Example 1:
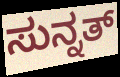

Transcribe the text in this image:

ಸುನ್ನತ್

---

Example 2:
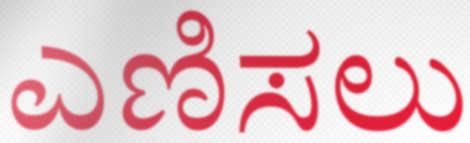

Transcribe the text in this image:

ಎಣಿಸಲು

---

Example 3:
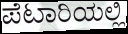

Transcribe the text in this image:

ಪೆಟಾರಿಯಲ್ಲಿ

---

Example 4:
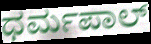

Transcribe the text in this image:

ಧರ್ಮಪಾಲ್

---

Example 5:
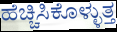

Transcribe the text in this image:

ಹೆಚ್ಚಿಸಿಕೊಳ್ಳುತ್ತ